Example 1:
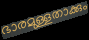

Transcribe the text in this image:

ഭാരമുള്ളതാക്കും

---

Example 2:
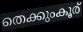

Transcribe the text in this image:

തെക്കുംകൂര്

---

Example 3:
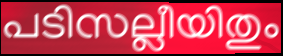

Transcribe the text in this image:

പടിസല്ലീയിതും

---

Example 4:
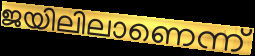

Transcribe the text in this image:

ജയിലിലാണെന്ന്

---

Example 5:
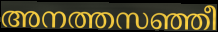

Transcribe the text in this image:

അനത്തസഞ്ഞീ